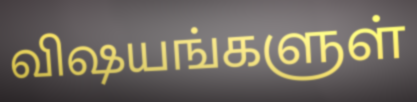
விஷயங்களுள்